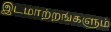
இடமாற்றங்களும்